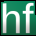
hf